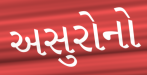
અસુરોનો